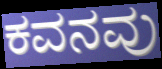
ಕವನವು